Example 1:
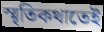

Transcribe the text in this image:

স্মৃতিকথাতেই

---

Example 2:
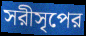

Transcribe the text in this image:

সরীসৃপের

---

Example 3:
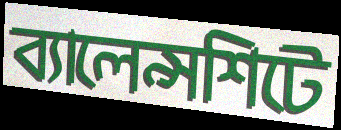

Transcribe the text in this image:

ব্যালেন্সশিটে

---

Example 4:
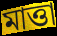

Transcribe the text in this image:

মাত্তা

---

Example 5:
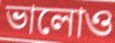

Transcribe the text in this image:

ভালোও